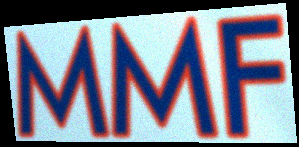
MMF